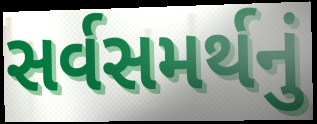
સર્વસમર્થનું